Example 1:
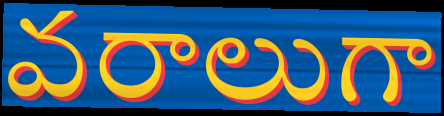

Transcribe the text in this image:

వరాలుగా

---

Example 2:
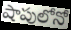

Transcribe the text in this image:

షాపులోనో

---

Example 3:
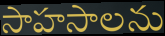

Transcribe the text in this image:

సాహసాలను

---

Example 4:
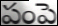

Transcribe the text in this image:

పంపె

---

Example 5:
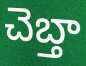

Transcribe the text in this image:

చెబ్తా